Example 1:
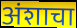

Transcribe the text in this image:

अंशाचा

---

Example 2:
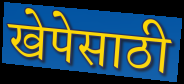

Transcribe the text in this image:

खेपेसाठी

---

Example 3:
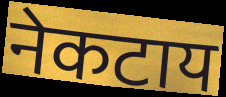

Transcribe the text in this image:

नेकटाय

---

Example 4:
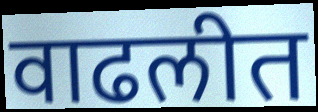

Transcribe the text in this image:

वाढलीत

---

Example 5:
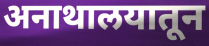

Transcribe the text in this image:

अनाथालयातून